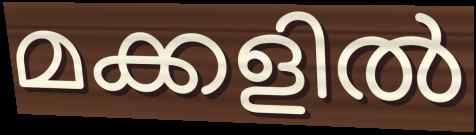
മക്കളിൽ